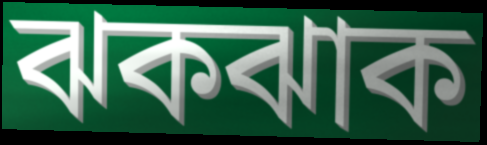
ঝকঝাক